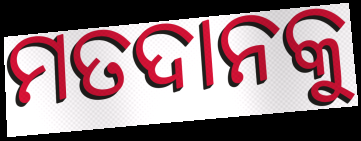
ମତଦାନକୁ